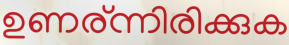
ഉണര്ന്നിരിക്കുക